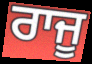
ਰਾਜੂ